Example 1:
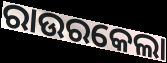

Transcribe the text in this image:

ରାଉରକେଲା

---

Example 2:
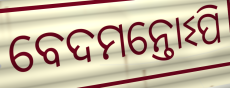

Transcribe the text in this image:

ବେଦମନ୍ତୋଽପି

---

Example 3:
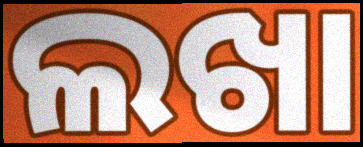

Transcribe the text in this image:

ଲଖା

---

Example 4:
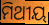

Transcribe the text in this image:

ମିଥୀୟ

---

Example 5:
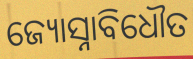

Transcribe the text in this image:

ଜ୍ୟୋସ୍ନାବିଧୌତ